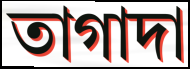
তাগাদা